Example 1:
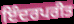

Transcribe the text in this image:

ਇੰਦਰਪਰੀਤ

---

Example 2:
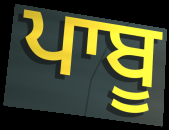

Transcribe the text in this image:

ਪਾਬੂ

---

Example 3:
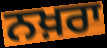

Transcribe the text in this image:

ਨਖ਼ਰਾ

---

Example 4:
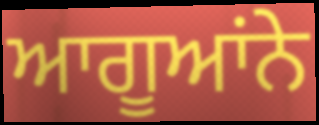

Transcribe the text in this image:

ਆਗੂਆਂਨੇ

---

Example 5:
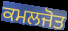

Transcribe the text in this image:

ਕਮਲਜੋਤ